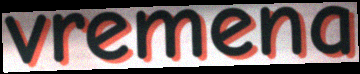
vremena